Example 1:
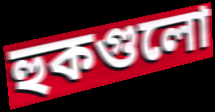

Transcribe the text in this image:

হুকগুলো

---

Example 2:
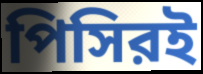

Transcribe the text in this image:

পিসিরই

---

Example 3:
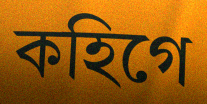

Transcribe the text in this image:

কহিগে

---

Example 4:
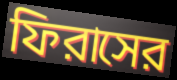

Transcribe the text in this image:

ফিরাসের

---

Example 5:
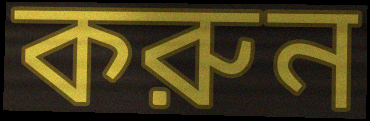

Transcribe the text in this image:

করুন